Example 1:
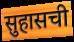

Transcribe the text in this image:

सुहासची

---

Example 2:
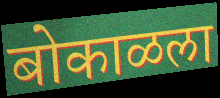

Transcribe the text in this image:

बोकाळला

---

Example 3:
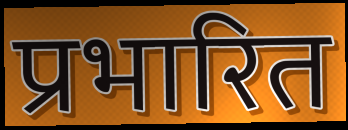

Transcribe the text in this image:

प्रभारित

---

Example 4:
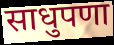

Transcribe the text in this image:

साधुपणा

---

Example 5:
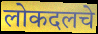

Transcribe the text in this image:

लोकदलचे